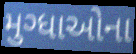
મુગ્ધાઓના